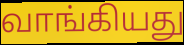
வாங்கியது